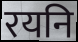
रयनि